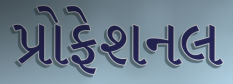
પ્રોફેશનલ